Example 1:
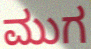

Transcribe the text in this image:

ಮುಗ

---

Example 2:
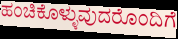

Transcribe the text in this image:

ಹಂಚಿಕೊಳ್ಳುವುದರೊಂದಿಗೆ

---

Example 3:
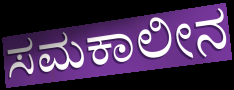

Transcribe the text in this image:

ಸಮಕಾಲೀನ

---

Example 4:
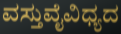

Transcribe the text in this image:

ವಸ್ತುವೈವಿಧ್ಯದ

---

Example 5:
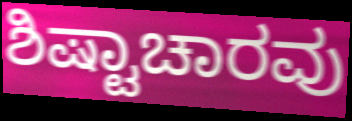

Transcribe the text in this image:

ಶಿಷ್ಟಾಚಾರವು